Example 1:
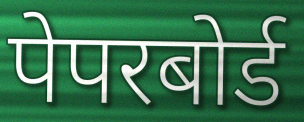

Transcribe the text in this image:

पेपरबोर्ड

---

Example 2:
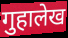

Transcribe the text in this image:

गुहालेख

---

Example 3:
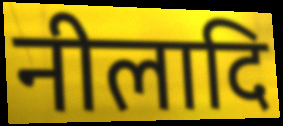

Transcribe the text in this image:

नीलादि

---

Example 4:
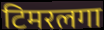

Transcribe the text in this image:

टिमरलगा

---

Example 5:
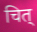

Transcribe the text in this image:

चित्